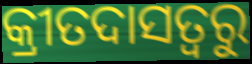
କ୍ରୀତଦାସତ୍ୱରୁ